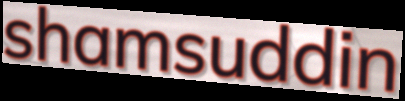
shamsuddin